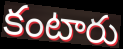
కంటారు